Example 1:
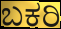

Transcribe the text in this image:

ಬಕರಿ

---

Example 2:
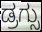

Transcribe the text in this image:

ಡ್ರಗ್ಸು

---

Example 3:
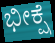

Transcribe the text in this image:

ಭೀಕ್ಷೆ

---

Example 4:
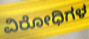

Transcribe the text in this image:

ವಿರೋಧಿಗಳ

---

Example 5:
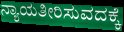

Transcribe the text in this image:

ನ್ಯಾಯತೀರಿಸುವದಕ್ಕೆ